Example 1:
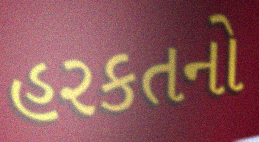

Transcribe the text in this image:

હરકતનો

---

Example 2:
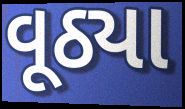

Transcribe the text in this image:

વૂઠ્યા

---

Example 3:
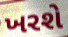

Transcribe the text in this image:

ખરશે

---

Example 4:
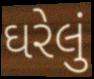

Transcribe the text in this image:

ઘરેલું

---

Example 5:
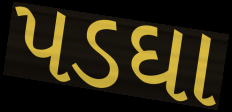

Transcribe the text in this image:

પડઘા